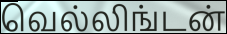
வெல்லிங்டன்